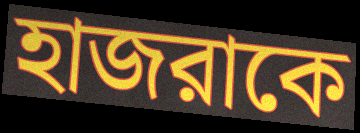
হাজরাকে